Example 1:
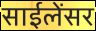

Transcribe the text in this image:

साईलेंसर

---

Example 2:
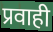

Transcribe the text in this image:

प्रवाही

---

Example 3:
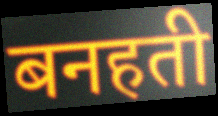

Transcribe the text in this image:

बनहती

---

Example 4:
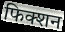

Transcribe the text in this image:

फिक्‍शन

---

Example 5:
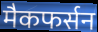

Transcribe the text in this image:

मैकफर्सन